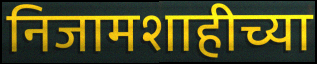
निजामशाहीच्या